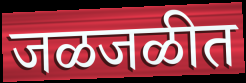
जळजळीत